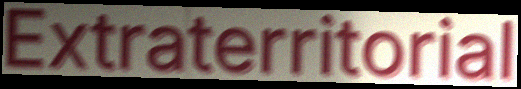
Extraterritorial